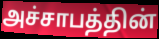
அச்சாபத்தின்